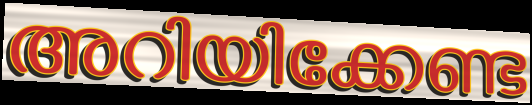
അറിയിക്കേണ്ട